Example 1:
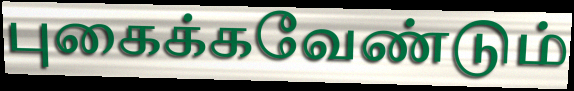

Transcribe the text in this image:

புகைக்கவேண்டும்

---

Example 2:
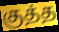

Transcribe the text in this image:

குத்த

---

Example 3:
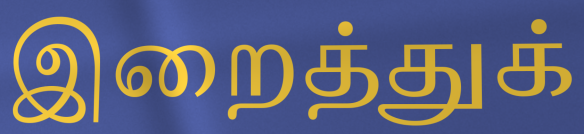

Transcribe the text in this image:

இறைத்துக்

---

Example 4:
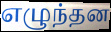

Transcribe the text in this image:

எழுந்தன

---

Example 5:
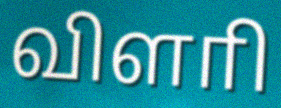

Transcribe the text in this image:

விளரி